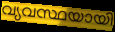
വ്യവസ്ഥയായി